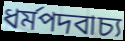
ধর্মপদবাচ্য